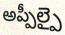
అప్పీల్పై